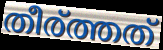
തീര്ത്തത്